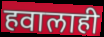
हवालाही